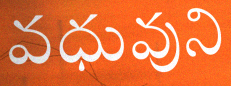
వధువుని